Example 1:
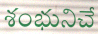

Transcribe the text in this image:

శంభునిచే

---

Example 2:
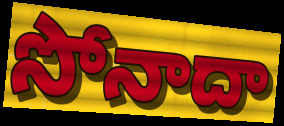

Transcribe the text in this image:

సోనాదా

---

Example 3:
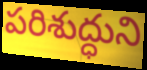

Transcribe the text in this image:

పరిశుద్ధుని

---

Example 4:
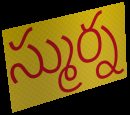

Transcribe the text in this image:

స్ముర్న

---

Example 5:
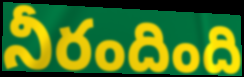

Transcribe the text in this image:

నీరందింది